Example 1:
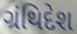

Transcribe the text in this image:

ગ્રંથિદેશ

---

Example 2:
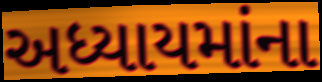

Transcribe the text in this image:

અધ્યાયમાંના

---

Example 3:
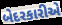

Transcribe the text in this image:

બેદરકારીએ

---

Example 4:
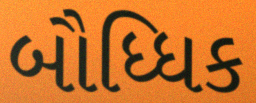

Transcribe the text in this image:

બૌધ્ધિક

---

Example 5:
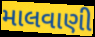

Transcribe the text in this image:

માલવાણી